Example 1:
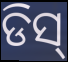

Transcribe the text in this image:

ଡିସ୍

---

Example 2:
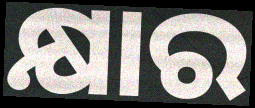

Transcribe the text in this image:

କ୍ଷାର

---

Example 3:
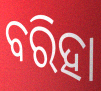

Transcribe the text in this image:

ବରିହା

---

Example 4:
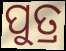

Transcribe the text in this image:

ପୁତ୍ର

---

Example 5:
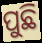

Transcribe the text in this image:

ପୁଛି